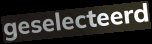
geselecteerd